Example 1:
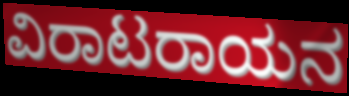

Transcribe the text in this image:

ವಿರಾಟರಾಯನ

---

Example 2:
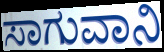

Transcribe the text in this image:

ಸಾಗುವಾನಿ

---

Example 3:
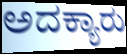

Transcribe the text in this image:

ಅದಕ್ಯಾರು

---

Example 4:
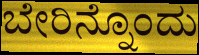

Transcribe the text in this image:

ಬೇರಿನ್ನೊಂದು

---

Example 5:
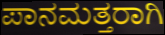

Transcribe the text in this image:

ಪಾನಮತ್ತರಾಗಿ